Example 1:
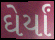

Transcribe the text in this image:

ઘેર્યાં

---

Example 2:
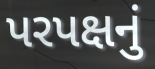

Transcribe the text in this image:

પરપક્ષનું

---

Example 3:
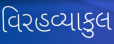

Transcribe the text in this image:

વિરહવ્યાકુલ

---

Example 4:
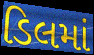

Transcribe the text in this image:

ડિલમાં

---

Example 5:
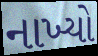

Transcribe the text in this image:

નાખ્યો